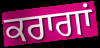
ਕਰਾਗਾਂ